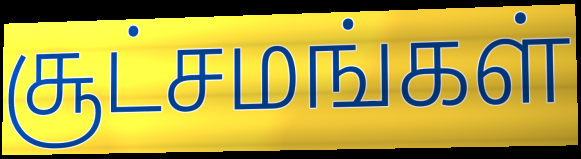
சூட்சமங்கள்